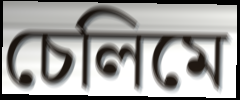
চেলিমে